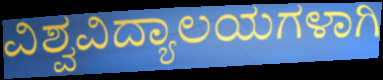
ವಿಶ್ವವಿದ್ಯಾಲಯಗಳಾಗಿ